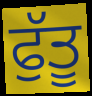
ਫੁੱਤੂ